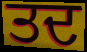
ਤਦ